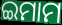
ଇମାମ